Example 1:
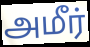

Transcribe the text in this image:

அமீர்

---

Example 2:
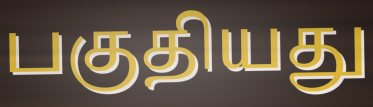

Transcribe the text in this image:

பகுதியது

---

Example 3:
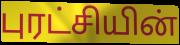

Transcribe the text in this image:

புரட்சியின்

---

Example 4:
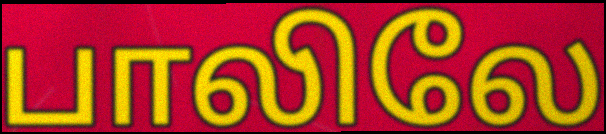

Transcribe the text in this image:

பாலிலே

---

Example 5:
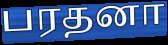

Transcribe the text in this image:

பரதனா